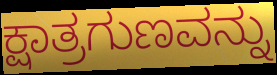
ಕ್ಷಾತ್ರಗುಣವನ್ನು